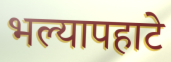
भल्यापहाटे